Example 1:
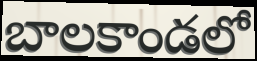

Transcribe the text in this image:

బాలకాండలో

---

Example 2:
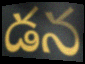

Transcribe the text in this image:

డన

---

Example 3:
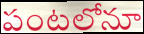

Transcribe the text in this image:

పంటలోనూ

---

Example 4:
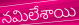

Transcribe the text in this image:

నమిలేశాయి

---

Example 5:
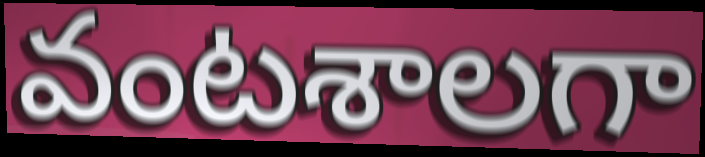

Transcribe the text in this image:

వంటశాలగా